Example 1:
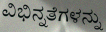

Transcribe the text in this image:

ವಿಭಿನ್ನತೆಗಳನ್ನು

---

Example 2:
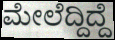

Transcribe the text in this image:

ಮೇಲೆದ್ದಿದ್ದೆ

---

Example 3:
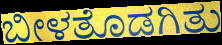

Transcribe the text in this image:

ಬೀಳತೊಡಗಿತು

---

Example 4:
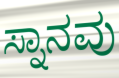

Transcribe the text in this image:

ಸ್ನಾನವು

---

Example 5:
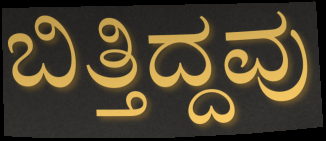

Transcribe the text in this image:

ಬಿತ್ತಿದ್ದವು